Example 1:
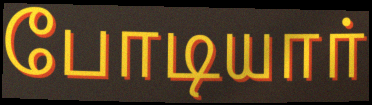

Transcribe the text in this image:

போடியார்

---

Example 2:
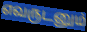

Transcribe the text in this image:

எவருடனும்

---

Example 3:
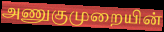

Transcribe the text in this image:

அணுகுமுறையின்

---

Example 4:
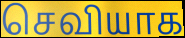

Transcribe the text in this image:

செவியாக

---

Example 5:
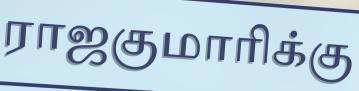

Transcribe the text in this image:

ராஜகுமாரிக்கு